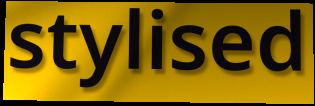
stylised